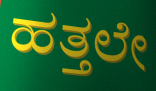
ಹತ್ತಲೇ